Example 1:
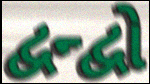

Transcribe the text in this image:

દ્વન્દ્વો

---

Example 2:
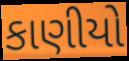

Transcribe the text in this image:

કાણીયો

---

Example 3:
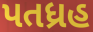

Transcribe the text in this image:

પતધ્રહ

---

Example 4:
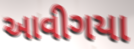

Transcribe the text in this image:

આવીગયા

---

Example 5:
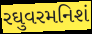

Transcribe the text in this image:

રઘુવરમનિશં